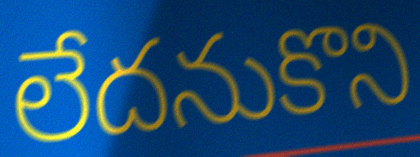
లేదనుకొని